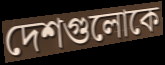
দেশগুলোকে